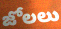
జోలలు